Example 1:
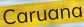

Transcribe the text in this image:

Caruana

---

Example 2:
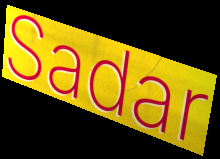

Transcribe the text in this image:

Sadar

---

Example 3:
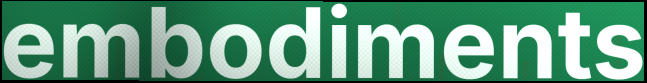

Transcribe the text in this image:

embodiments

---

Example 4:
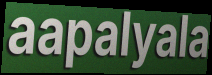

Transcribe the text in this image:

aapalyala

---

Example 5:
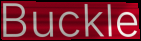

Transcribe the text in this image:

Buckle